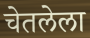
चेतलेला